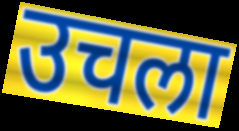
उचला